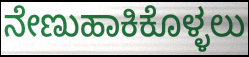
ನೇಣುಹಾಕಿಕೊಳ್ಳಲು